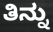
ತಿನ್ನು